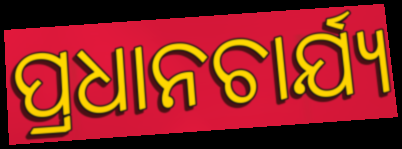
ପ୍ରଧାନଚାର୍ଯ୍ୟ